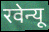
रवेन्यू